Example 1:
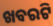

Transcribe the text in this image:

ଖବରଟି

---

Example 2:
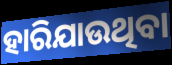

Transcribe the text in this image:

ହାରିଯାଉଥିବା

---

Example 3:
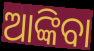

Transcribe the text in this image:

ଆଙ୍କିବା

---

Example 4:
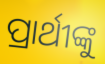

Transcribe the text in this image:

ପ୍ରାର୍ଥୀଙ୍କୁ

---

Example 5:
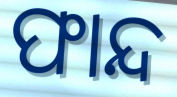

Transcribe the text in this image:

ଫାନ୍ଦ